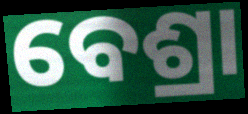
ବେଶ୍ରା